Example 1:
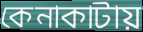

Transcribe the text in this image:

কেনাকাটায়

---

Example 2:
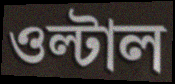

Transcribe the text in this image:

ওল্টাল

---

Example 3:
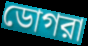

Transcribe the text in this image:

ডোগরা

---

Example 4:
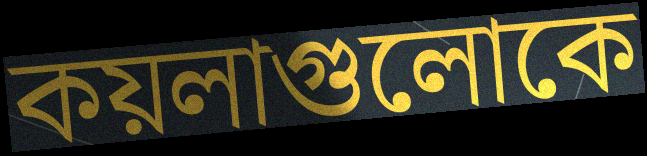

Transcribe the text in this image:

কয়লাগুলোকে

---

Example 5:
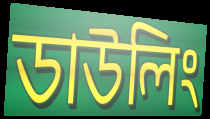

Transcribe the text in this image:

ডাউলিং